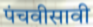
पंचवीसावी